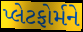
પ્લેટફોર્મને